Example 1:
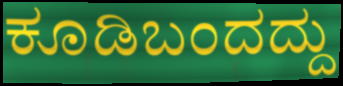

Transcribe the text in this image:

ಕೂಡಿಬಂದದ್ದು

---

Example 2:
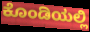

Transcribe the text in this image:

ಕೊಂಡಿಯಲ್ಲಿ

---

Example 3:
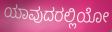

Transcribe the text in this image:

ಯಾವುದರಲ್ಲಿಯೋ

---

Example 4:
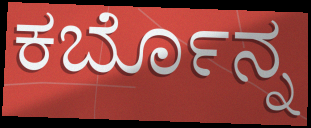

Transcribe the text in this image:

ಕರ್ಬೊನ್ನ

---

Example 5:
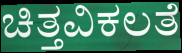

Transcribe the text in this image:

ಚಿತ್ತವಿಕಲತೆ